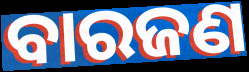
ବାରଜଣ